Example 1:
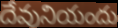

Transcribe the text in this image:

దేవునియందు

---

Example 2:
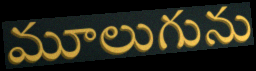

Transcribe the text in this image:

మూలుగును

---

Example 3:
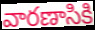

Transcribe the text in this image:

వారణాసికి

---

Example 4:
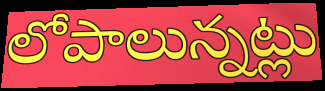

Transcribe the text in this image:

లోపాలున్నట్లు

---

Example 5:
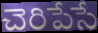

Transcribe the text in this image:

చెరిపేసే